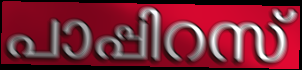
പാപ്പിറസ്